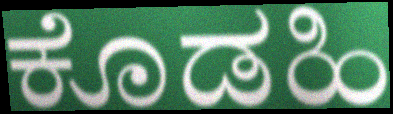
ಕೊಡಹಿ